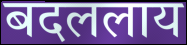
बदललाय